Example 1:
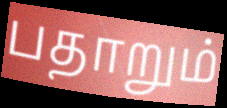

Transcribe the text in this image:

பதாறும்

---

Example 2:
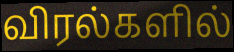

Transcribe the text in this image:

விரல்களில்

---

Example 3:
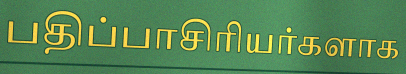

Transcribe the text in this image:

பதிப்பாசிரியர்களாக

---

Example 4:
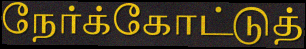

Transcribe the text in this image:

நேர்க்கோட்டுத்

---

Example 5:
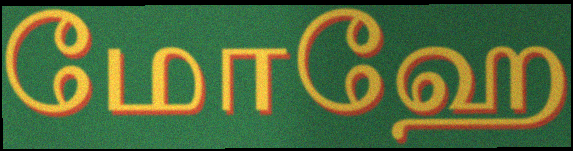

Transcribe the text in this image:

மோஹே